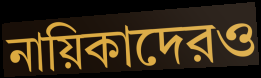
নায়িকাদেরও